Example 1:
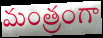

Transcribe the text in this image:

మంత్రంగా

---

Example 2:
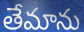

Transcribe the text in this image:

తేమాను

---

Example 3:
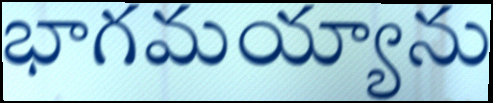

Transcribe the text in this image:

భాగమయ్యాను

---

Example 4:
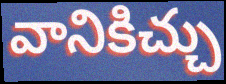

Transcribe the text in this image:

వానికిచ్చు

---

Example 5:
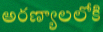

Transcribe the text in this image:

అరణ్యాలలోకి